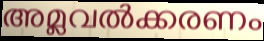
അമ്ലവൽക്കരണം